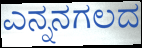
ಎನ್ನನಗಲದ